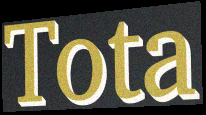
Tota